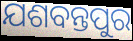
ଯଶବନ୍ତପୁର